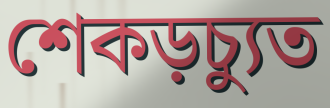
শেকড়চ্যুত